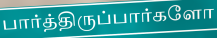
பார்த்திருப்பார்களோ